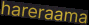
hareraama